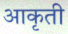
आकृती